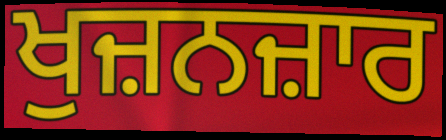
ਖੁਜ਼ਨਜ਼ਾਰ